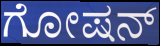
ಗೋಷನ್